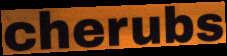
cherubs